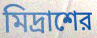
মিদ্রাশের